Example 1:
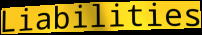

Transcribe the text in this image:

Liabilities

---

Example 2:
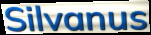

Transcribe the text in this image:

Silvanus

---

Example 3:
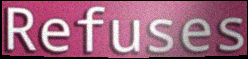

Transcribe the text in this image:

Refuses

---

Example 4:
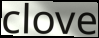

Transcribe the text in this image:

clove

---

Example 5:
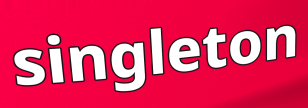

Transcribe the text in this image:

singleton